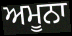
ਅਮੂਨਾ